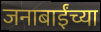
जनाबाईंच्या